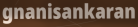
gnanisankaran